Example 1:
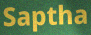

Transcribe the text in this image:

Saptha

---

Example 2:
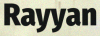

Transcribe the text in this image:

Rayyan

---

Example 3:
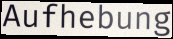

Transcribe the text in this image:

Aufhebung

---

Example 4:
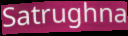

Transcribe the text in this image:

Satrughna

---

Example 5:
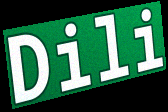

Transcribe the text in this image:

Dili